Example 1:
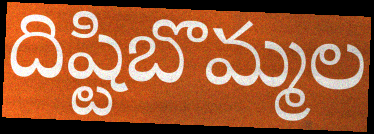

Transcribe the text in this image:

దిష్టిబొమ్మల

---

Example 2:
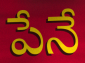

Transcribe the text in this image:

పేనే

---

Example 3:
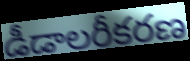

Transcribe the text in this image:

డీడాలరీకరణ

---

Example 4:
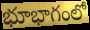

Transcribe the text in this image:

భూభాగంలో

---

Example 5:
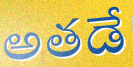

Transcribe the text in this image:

అతడే